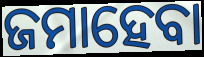
ଜମାହେବା